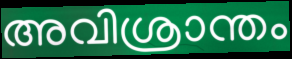
അവിശ്രാന്തം